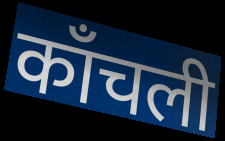
काँचली